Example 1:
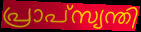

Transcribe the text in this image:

പ്രാപ്സ്യന്തി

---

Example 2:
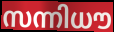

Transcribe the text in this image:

സന്നിധൗ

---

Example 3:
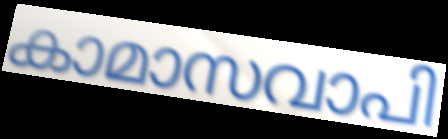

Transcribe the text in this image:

കാമാസവാപി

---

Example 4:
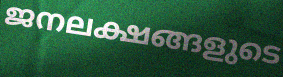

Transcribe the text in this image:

ജനലക്ഷങ്ങളുടെ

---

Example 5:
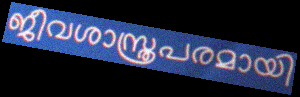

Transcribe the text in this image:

ജീവശാസ്ത്രപരമായി